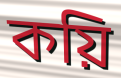
কয়ি